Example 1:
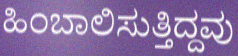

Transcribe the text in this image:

ಹಿಂಬಾಲಿಸುತ್ತಿದ್ದವು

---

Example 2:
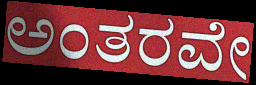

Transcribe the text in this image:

ಅಂತರವೇ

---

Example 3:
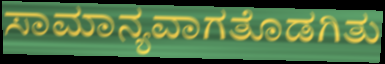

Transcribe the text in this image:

ಸಾಮಾನ್ಯವಾಗತೊಡಗಿತು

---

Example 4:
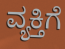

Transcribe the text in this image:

ವ್ಯಕ್ತಿಗೆ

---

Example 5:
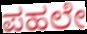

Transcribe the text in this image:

ಪಹಲೇ